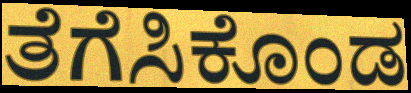
ತೆಗೆಸಿಕೊಂಡ